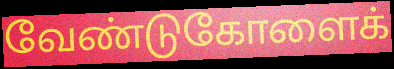
வேண்டுகோளைக்